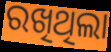
ରଖିଥିଲା